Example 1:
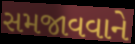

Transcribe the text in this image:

સમજાવવાને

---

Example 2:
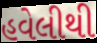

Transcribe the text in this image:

હવેલીથી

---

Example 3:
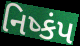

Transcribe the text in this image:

નિષ્કંપ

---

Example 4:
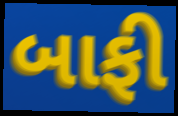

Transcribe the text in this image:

બાફી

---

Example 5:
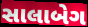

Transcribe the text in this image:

સાલાબેગ